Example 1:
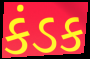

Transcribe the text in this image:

કંડક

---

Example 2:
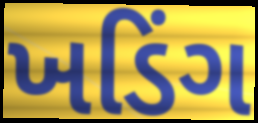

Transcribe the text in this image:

ખડિંગ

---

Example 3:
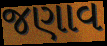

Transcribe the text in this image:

જણાવ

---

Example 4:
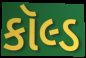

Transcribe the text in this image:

કૉલ્ડ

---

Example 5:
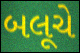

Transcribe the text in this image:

બલૂચે